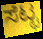
ಸೆಟ್ಟ